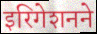
इरिगेशनने